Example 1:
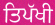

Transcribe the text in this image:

ਤਿਪੱਖੀ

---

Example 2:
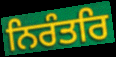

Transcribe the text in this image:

ਨਿਰੰਤਰਿ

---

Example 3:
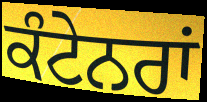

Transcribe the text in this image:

ਕੰਟੇਨਰਾਂ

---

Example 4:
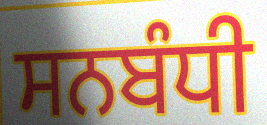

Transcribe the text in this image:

ਸਨਬੰਧੀ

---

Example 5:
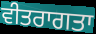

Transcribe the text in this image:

ਵੀਤਰਾਗਤਾ